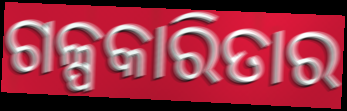
ଗଳ୍ପକାରିତାର